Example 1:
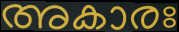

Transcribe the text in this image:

അകാരഃ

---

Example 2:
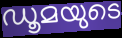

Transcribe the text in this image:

ഡൂമയുടെ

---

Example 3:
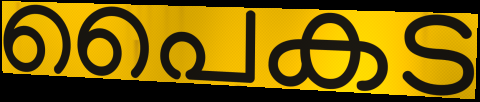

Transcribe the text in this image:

പൈകട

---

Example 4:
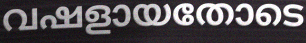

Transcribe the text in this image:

വഷളായതോടെ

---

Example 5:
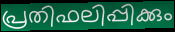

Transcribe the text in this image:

പ്രതിഫലിപ്പിക്കും